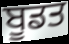
ਬੂਡਤ